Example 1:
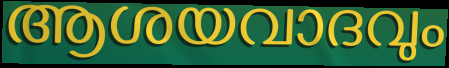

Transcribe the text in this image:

ആശയവാദവും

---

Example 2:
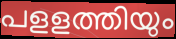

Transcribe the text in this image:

പളളത്തിയും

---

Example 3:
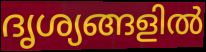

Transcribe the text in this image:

ദൃശ്യങ്ങളിൽ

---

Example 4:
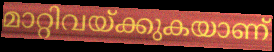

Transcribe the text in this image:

മാറ്റിവയ്ക്കുകയാണ്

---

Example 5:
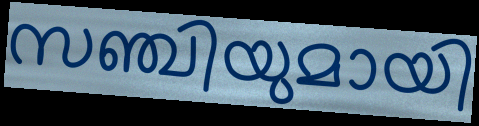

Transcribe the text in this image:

സഞ്ചിയുമായി